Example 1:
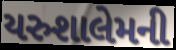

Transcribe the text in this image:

યરુશાલેમની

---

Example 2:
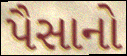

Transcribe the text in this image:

પૈસાનો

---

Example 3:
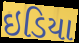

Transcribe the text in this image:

ઇડિયા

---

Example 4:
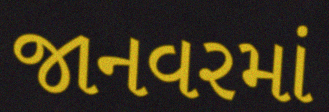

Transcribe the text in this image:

જાનવરમાં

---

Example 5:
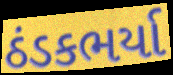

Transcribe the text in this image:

ઠંડકભર્યા